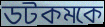
ডটকমকে